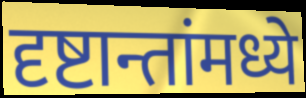
दृष्टान्तांमध्ये